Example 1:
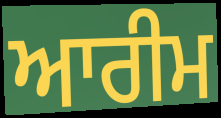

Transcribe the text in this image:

ਆਰੀਮ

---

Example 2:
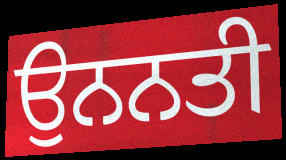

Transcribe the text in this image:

ਉਨਨਤੀ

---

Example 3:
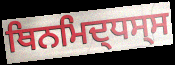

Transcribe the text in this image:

ਥਿਨਮਿਦ੍ਧਸ੍ਸ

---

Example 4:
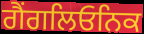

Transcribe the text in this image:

ਗੈਂਗਲਿਓਨਿਕ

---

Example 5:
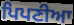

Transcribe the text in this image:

ਪਿਪਣੀਆ